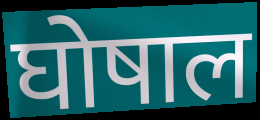
घोषाल